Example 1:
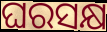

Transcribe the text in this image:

ଘରସକ୍ଷ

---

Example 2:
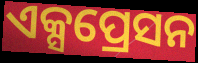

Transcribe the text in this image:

ଏକ୍ସପ୍ରେସନ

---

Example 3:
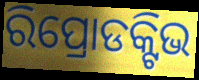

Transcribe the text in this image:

ରିପ୍ରୋଡକ୍ଟିଭ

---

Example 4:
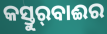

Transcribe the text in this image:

କସ୍ତୁର୍‍ବାଈର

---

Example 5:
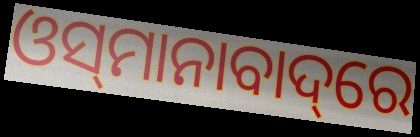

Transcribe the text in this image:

ଓସ୍‌ମାନାବାଦ୍‌ରେ